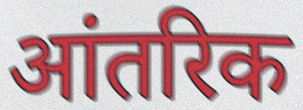
आंतरिक